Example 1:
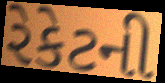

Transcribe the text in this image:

રેકેટની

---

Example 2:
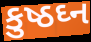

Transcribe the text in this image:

કુષ્ઠઘ્ન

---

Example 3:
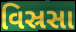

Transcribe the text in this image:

વિસ્રસા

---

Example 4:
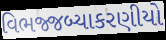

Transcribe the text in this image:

વિભજ્જબ્યાકરણીયો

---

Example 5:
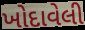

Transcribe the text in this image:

ખોદાવેલી